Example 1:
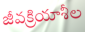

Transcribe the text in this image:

జీవక్రియాశీల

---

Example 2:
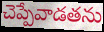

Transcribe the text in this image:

చెప్పేవాడతను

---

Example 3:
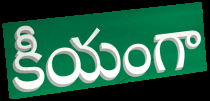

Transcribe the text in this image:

కీయంగా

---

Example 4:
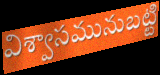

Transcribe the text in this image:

విశ్వాసమునుబట్టి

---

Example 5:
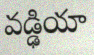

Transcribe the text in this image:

వడ్ఢియా